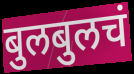
बुलबुलचं